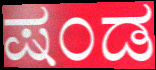
ಷಂಡ